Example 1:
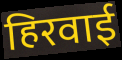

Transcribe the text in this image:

हिरवाई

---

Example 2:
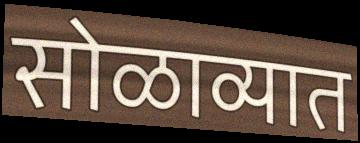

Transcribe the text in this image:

सोळाव्यात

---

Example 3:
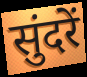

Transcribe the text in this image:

सुंदरें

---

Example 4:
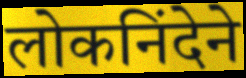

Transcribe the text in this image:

लोकनिंदेने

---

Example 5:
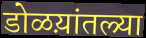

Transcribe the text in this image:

डोळय़ांतल्या